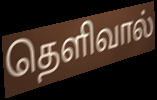
தெளிவால்